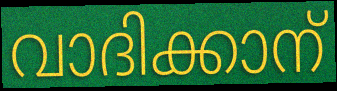
വാദിക്കാന്